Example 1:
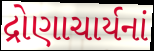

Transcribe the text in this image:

દ્રોણાચાર્યનાં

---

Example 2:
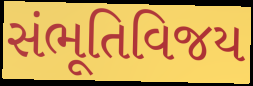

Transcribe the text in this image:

સંભૂતિવિજય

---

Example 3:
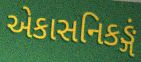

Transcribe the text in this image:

એકાસનિકઙ્ગં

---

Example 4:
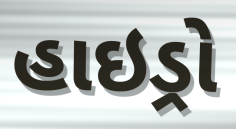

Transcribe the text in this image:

હાઇડ્રો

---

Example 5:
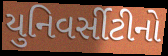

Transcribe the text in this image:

યુનિવર્સીટીનો